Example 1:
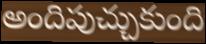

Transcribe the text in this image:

అందిపుచ్చుకుంది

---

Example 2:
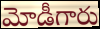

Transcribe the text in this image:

మోడీగారు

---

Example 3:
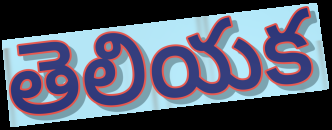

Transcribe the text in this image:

తెలియక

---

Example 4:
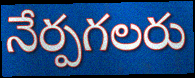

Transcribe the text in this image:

నేర్పగలరు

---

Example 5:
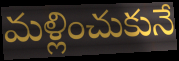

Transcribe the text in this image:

మళ్లించుకునే